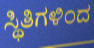
ಸ್ಥಿತಿಗಳಿಂದ